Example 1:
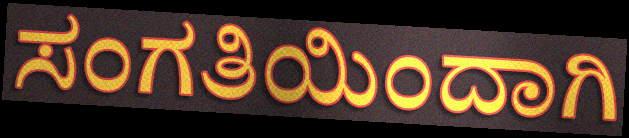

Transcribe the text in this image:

ಸಂಗತಿಯಿಂದಾಗಿ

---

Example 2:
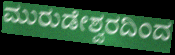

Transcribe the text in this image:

ಮುರುಡೇಶ್ವರದಿಂದ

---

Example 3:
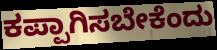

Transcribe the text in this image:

ಕಪ್ಪಾಗಿಸಬೇಕೆಂದು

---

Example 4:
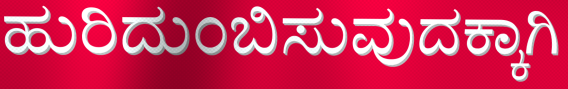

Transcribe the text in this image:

ಹುರಿದುಂಬಿಸುವುದಕ್ಕಾಗಿ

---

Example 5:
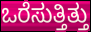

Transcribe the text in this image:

ಒರೆಸುತ್ತಿತ್ತು